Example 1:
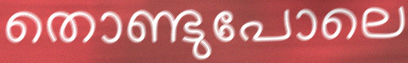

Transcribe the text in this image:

തൊണ്ടുപോലെ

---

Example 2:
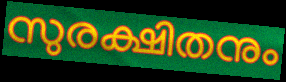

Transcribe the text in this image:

സുരക്ഷിതനും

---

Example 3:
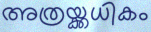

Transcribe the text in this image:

അത്രയ്ക്കധികം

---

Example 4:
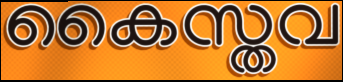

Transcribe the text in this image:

കൈസ്തവ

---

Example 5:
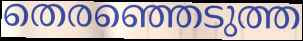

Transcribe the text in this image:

തെരഞ്ഞെടുത്ത